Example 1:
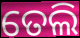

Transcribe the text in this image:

ତେଲି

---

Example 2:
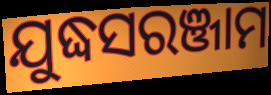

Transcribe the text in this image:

ଯୁଦ୍ଧସରଞ୍ଜାମ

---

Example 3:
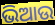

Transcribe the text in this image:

ଭିଆଉ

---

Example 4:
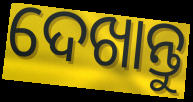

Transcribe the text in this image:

ଦେଖାନ୍ତୁ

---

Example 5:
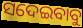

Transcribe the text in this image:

ସଦେଇବାବୁ